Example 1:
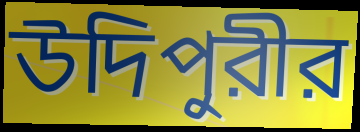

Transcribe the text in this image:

উদিপুরীর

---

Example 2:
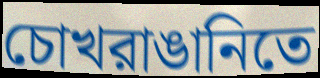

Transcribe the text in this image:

চোখরাঙানিতে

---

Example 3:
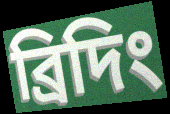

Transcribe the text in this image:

ব্রিদিং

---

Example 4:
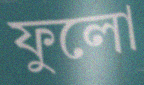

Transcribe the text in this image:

ফুলো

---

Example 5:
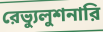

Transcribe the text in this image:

রেভ্যুলুশনারি